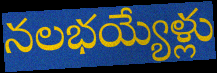
నలభయ్యేళ్లు